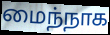
மைந்நாக